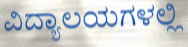
ವಿದ್ಯಾಲಯಗಳಲ್ಲಿ